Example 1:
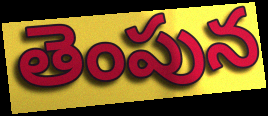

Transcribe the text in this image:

తెంపున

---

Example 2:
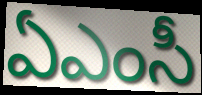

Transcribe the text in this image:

ఏఎంసీ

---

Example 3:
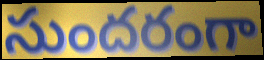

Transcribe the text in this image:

సుందరంగా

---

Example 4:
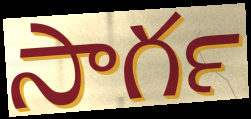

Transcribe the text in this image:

సాగర్‍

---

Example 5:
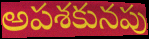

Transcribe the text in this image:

అపశకునపు